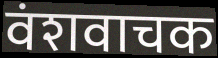
वंशवाचक